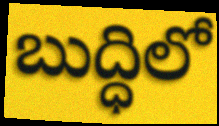
బుద్ధిలో